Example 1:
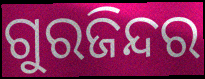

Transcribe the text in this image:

ଗୁରଜିନ୍ଦର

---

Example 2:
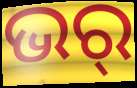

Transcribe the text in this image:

ଭର୍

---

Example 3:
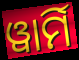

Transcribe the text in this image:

ୱାର୍ମି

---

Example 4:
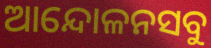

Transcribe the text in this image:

ଆନ୍ଦୋଳନସବୁ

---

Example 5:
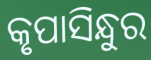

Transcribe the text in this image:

କୃପାସିନ୍ଧୁର